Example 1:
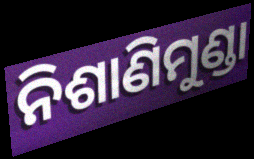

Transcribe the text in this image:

ନିଶାଣିମୁଣ୍ଡା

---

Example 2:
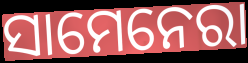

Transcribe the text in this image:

ସାମେନେରା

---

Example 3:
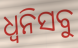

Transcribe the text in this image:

ଧ୍ୱନିସବୁ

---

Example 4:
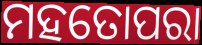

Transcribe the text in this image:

ମହତୋପରା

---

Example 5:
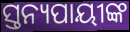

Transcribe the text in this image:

ସ୍ତନ୍ୟପାୟୀଙ୍କ